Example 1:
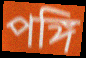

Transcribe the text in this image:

পঙ্গি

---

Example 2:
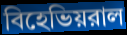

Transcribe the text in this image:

বিহেভিয়রাল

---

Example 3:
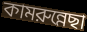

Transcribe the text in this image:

কামরুন্নেছা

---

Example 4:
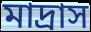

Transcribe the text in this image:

মাদ্রাস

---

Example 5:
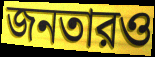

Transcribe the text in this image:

জনতারও